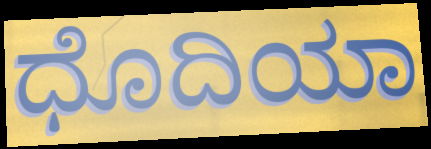
ಧೊದಿಯಾ